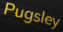
Pugsley